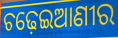
ଚଢ଼େଇଆଣୀର